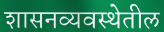
शासनव्यवस्थेतील